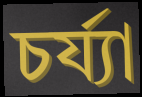
চর্য্যা